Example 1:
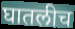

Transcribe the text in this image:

घातलीच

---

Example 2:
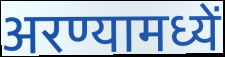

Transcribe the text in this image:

अरण्यामध्यें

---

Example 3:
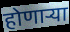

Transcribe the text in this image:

होणाऱ्या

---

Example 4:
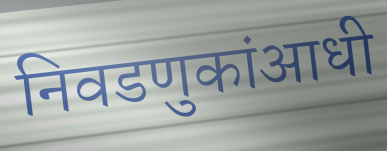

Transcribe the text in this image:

निवडणुकांआधी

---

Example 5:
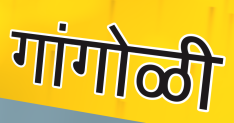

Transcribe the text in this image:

गांगोळी